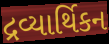
દ્રવ્યાર્થિકન